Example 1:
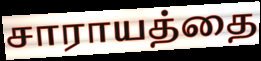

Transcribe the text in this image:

சாராயத்தை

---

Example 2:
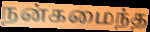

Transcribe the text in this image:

நன்கமைந்த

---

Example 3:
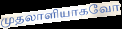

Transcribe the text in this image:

முதலாளியாகவோ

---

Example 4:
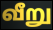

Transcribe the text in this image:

வீறு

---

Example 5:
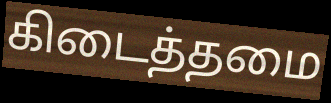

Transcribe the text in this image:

கிடைத்தமை